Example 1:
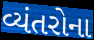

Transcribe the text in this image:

વ્યંતરોના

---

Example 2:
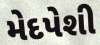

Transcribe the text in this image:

મેદપેશી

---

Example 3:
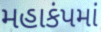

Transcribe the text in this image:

મહાકંપમાં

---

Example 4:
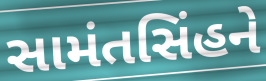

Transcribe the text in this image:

સામંતસિંહને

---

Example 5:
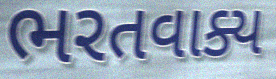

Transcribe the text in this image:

ભરતવાક્ય